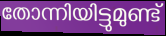
തോന്നിയിട്ടുമുണ്ട്